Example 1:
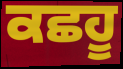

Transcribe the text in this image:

ਕਛਹੂ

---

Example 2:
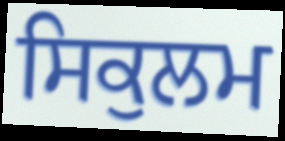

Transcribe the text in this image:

ਸਿਕੁਲਮ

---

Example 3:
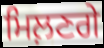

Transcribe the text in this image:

ਮਿਲ਼ਣਗੇ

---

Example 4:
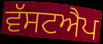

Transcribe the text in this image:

ਵੱਸਟਐਪ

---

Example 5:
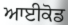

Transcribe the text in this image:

ਆਈਕੋਡ